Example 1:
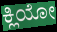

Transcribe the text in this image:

ಕ್ಲಿಯೋ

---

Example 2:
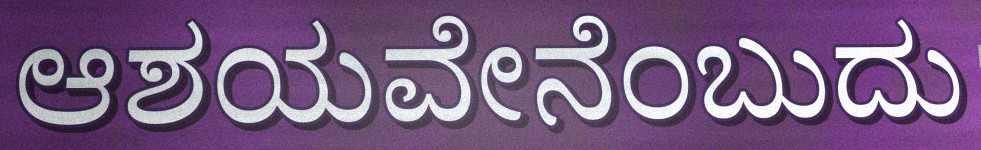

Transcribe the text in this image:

ಆಶಯವೇನೆಂಬುದು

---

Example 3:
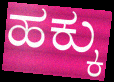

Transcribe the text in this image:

ಹಕ್ಕು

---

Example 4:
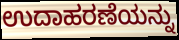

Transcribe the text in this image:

ಉದಾಹರಣೆಯನ್ನು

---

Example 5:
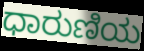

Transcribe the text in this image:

ಧಾರುಣಿಯ